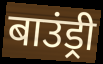
बाउंड्री